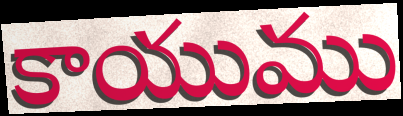
కాయుము